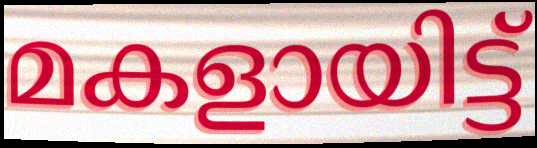
മകളായിട്ട്